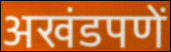
अखंडपणें